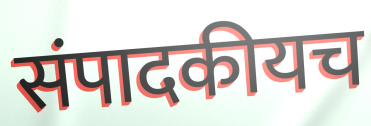
संपादकीयच